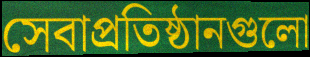
সেবাপ্রতিষ্ঠানগুলো